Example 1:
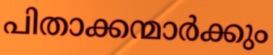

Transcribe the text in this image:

പിതാക്കന്മാർക്കും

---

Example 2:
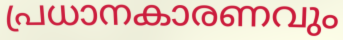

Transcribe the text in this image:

പ്രധാനകാരണവും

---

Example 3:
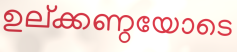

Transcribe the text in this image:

ഉല്ക്കണ്ഠയോടെ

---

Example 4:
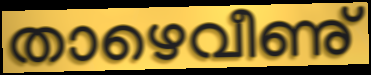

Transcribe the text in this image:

താഴെവീണു്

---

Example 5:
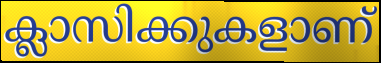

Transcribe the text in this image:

ക്ലാസിക്കുകളാണ്